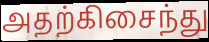
அதற்கிசைந்து